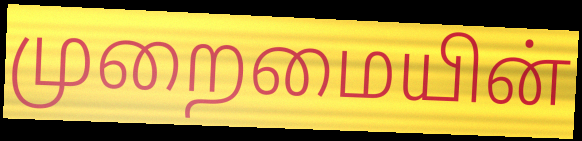
முறைமையின்